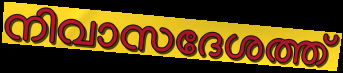
നിവാസദേശത്ത്